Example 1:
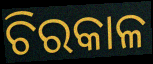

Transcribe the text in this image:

ଚିରକାଳ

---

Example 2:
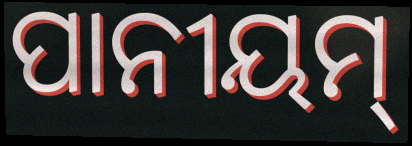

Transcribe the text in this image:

ପାନୀୟମ୍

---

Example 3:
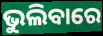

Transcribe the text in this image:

ଭୁଲିବାରେ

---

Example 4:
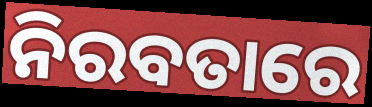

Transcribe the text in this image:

ନିରବତାରେ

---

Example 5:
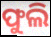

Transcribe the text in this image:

ଫୁଲି